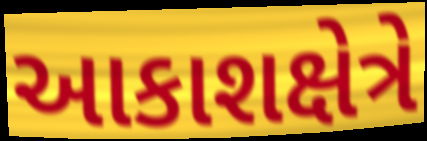
આકાશક્ષેત્રે